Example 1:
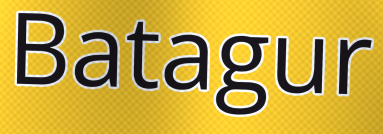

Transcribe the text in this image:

Batagur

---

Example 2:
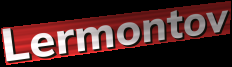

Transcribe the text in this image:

Lermontov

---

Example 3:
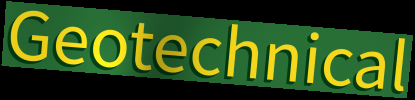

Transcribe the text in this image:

Geotechnical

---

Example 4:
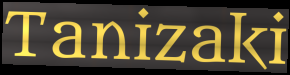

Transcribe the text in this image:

Tanizaki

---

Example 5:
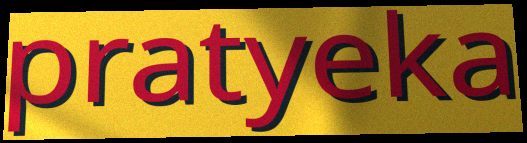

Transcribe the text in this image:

pratyeka